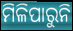
ମିଳିପାରୁନି